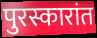
पुरस्कारांत